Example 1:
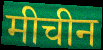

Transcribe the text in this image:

मीचीन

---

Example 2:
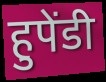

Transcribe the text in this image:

हुपेंडी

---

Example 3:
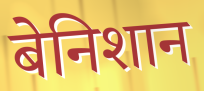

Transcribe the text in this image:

बेनिशान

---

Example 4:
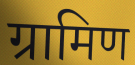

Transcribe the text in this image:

ग्रामिण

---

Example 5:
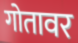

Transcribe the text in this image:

गोतावर